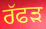
ਰੱਫੜ